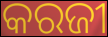
କରଜୀ